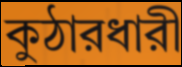
কুঠারধারী